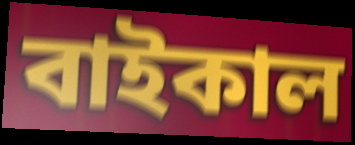
বাইকাল